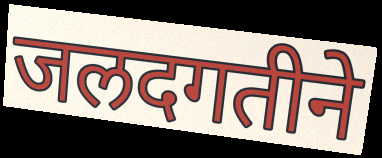
जलदगतीने